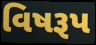
વિષરૂપ